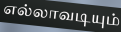
எல்லாவடியும்